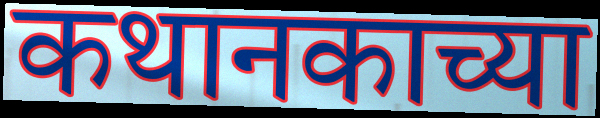
कथानकाच्या